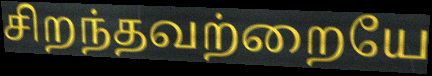
சிறந்தவற்றையே